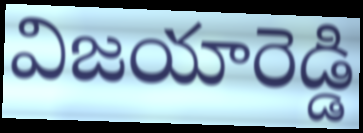
విజయారెడ్డి